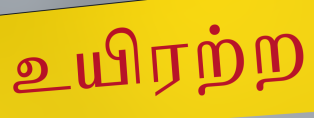
உயிரற்ற